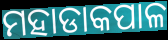
ମହାଡାକପାଳ